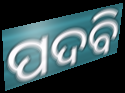
ପଦବି